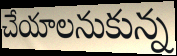
చేయాలనుకున్న